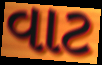
વાટ